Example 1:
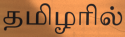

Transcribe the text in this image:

தமிழரில்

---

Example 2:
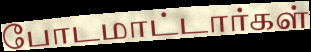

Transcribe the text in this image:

போடமாட்டார்கள்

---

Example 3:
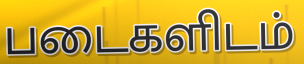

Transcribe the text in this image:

படைகளிடம்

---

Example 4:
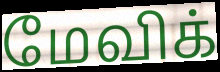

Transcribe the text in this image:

மேவிக்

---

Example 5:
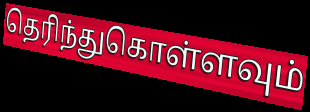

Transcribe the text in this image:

தெரிந்துகொள்ளவும்